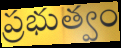
ప్రభుత్వం